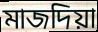
মাজদিয়া